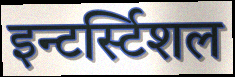
इन्टर्स्टिशल